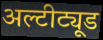
अल्टीट्यूड